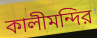
কালীমন্দির